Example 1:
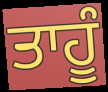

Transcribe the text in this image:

ਤਾਹੂੰ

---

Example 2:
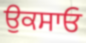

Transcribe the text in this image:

ਉਕਸਾਓ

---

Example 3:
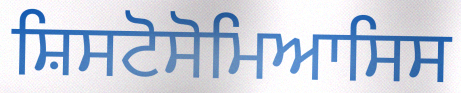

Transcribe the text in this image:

ਸ਼ਿਸਟੋਸੋਮਿਆਸਿਸ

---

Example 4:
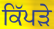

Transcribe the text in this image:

ਕਿੱਪੜੇ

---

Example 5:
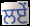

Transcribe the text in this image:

ਲਏਂ